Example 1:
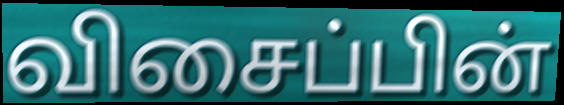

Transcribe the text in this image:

விசைப்பின்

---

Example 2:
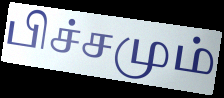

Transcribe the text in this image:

பிச்சமும்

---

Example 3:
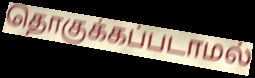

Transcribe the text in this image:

தொகுக்கப்படாமல்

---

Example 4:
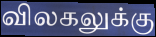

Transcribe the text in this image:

விலகலுக்கு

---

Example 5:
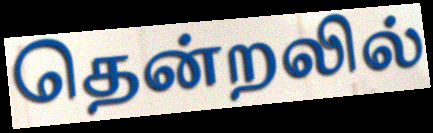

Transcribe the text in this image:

தென்றலில்